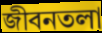
জীবনতলা